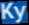
Ky